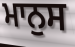
ਮਾਨੁਸ